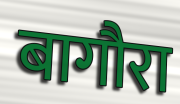
बागौरा